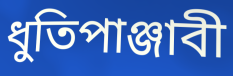
ধুতিপাঞ্জাবী